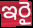
ఇరై